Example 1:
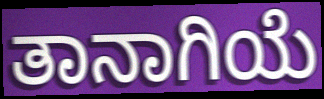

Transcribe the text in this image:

ತಾನಾಗಿಯೆ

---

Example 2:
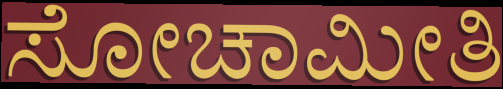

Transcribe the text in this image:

ಸೋಚಾಮೀತಿ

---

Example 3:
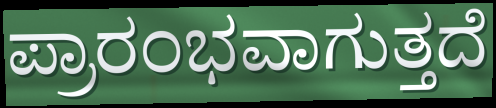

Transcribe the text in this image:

ಪ್ರಾರಂಭವಾಗುತ್ತದೆ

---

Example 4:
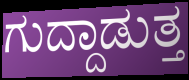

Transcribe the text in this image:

ಗುದ್ದಾಡುತ್ತ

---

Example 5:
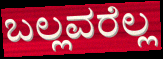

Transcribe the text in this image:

ಬಲ್ಲವರೆಲ್ಲ